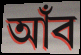
আঁব